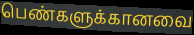
பெண்களுக்கானவை